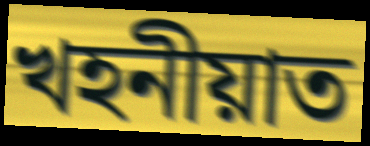
খহনীয়াত